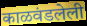
काळवंडलेली